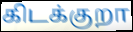
கிடக்குறா